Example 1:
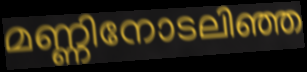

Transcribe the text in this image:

മണ്ണിനോടലിഞ്ഞ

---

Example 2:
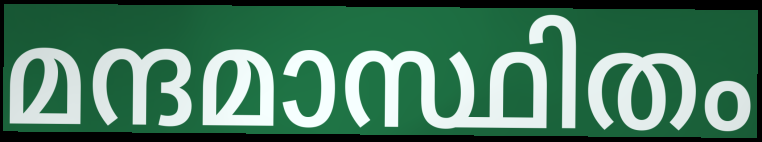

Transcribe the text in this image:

മന്ദമാസ്ഥിതം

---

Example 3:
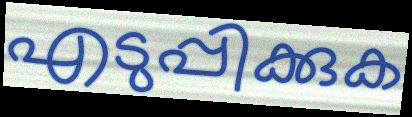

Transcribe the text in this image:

എടുപ്പിക്കുക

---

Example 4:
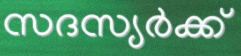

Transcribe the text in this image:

സദസ്യർക്ക്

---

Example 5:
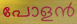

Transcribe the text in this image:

പോളൻ